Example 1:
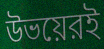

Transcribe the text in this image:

উভয়েরই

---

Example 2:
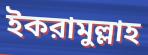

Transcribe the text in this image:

ইকরামুল্লাহ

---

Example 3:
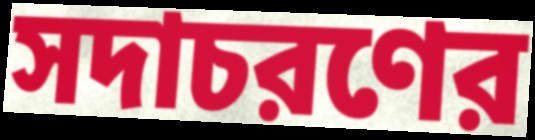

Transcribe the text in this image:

সদাচরণের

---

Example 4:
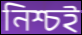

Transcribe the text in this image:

নিশ্চই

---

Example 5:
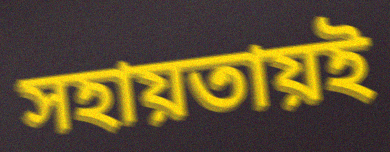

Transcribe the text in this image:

সহায়তায়ই